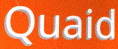
Quaid